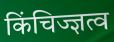
किंचिज्ज्ञत्व